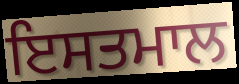
ਇਸਤਮਾਲ